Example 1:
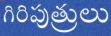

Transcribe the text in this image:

గిరిపుత్రులు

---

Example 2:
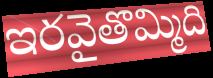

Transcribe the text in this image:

ఇరవైతొమ్మిది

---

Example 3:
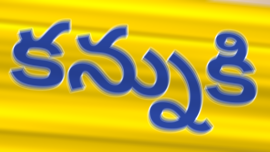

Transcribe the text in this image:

కన్నుకి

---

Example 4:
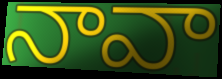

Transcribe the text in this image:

నావా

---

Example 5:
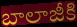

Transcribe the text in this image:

బాలాజీకి